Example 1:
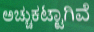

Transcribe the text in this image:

ಅಚ್ಚುಕಟ್ಟಾಗಿವೆ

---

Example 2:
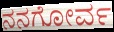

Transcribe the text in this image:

ನನಗೋರ್ವ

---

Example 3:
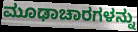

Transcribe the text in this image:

ಮೂಢಾಚಾರಗಳನ್ನು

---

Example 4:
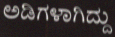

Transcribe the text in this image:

ಅಡಿಗಳಾಗಿದ್ದು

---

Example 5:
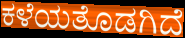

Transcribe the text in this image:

ಕಳೆಯತೊಡಗಿದೆ